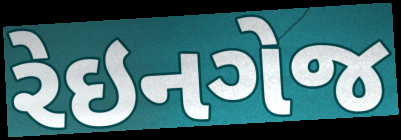
રેઇનગેજ